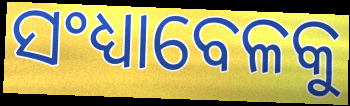
ସଂଧ୍ୟାବେଳକୁ